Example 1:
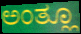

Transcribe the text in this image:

ಅಂತ್ಲೂ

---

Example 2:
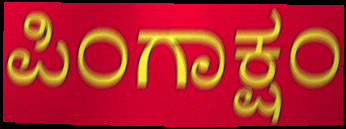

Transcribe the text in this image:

ಪಿಂಗಾಕ್ಷಂ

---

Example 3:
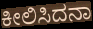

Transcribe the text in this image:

ಕೀಲಿಸಿದನಾ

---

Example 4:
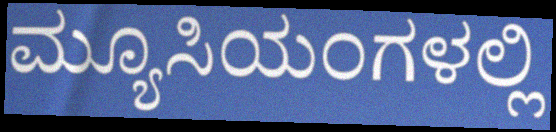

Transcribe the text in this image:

ಮ್ಯೂಸಿಯಂಗಳಲ್ಲಿ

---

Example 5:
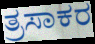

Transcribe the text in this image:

ತ್ರಸಾಕರ